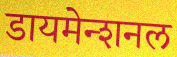
डायमेन्शनल